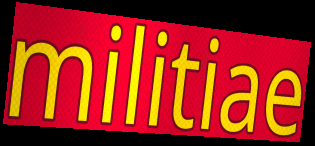
militiae